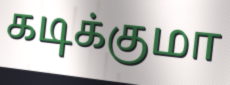
கடிக்குமா